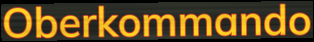
Oberkommando